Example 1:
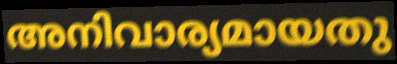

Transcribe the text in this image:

അനിവാര്യമായതു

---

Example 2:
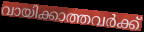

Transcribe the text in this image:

വായിക്കാത്തവർക്ക്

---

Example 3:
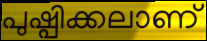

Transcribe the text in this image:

പുഷ്പിക്കലാണ്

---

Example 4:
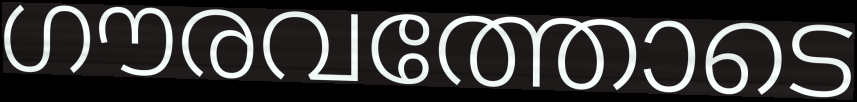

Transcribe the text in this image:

ഗൗരവത്തോടെ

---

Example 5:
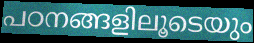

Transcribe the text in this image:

പഠനങ്ങളിലൂടെയും